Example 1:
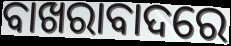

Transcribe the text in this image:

ବାଖରାବାଦରେ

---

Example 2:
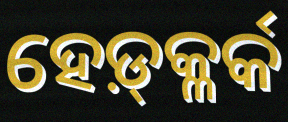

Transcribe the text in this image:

ହେଡ଼୍‍କ୍ଳର୍କ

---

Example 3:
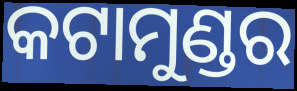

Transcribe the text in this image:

କଟାମୁଣ୍ଡର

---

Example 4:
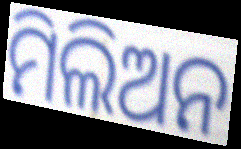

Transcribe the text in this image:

ମିଲିଅନ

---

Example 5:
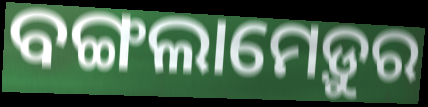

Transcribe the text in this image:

ବଙ୍ଗଲାମେଡ଼ୁର